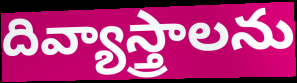
దివ్యాస్త్రాలను